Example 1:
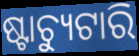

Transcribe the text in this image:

ଷ୍ଟାଚ୍ୟୁଟାରି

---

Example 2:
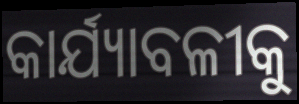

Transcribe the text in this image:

କାର୍ଯ୍ୟାବଳୀକୁ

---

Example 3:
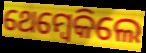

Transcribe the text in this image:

ଥେମ୍ବେକିଲେ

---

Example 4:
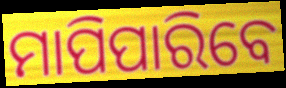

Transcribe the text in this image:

ମାପିପାରିବେ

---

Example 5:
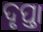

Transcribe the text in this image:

ଦୃପ୍ତା